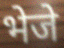
भेजे